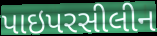
પાઇપરસીલીન